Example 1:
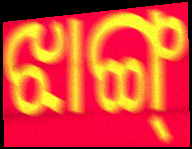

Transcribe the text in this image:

ଝାଙ୍ଗ୍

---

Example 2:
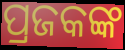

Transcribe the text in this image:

ପ୍ରଜକଙ୍କ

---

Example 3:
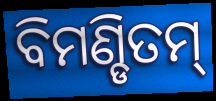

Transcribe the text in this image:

ବିମଣ୍ଡିତମ୍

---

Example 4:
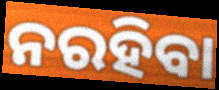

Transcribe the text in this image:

ନରହିବା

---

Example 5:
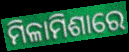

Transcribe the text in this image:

ମିଳାମିଶାରେ